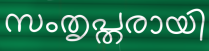
സംതൃപ്തരായി